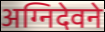
अग्निदेवने